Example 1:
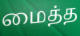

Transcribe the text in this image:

மைத்த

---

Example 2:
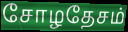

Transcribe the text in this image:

சோழதேசம்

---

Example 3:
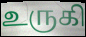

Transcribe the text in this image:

உருகி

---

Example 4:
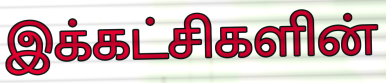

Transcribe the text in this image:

இக்கட்சிகளின்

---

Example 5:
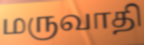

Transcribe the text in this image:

மருவாதி